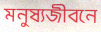
মনুষ্যজীবনে